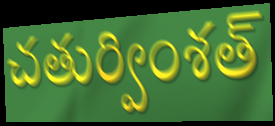
చతుర్వింశత్